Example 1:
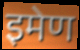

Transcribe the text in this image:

इमेण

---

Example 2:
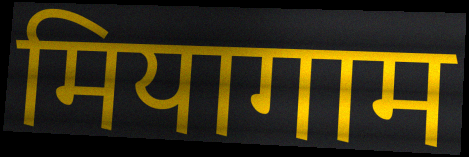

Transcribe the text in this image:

मियागाम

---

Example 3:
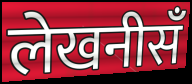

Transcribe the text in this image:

लेखनीसँ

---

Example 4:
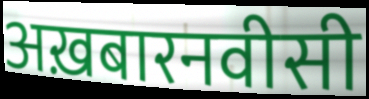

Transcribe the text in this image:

अख़बारनवीसी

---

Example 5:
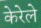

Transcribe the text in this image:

केरेले